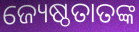
ଜ୍ୟେଷ୍ଠତାତଙ୍କ